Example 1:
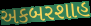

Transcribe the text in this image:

અકબરશાહ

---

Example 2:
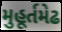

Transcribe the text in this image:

મુહૂર્તમેઢ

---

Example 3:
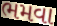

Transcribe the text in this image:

ભમવા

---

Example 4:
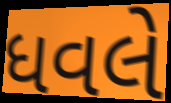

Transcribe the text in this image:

ધવલે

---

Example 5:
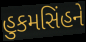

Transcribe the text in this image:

હુકમસિંહને